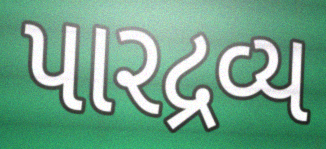
પારદ્રવ્ય